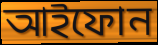
আইফোন